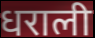
धराली